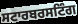
ਸਟਾਰਬਰਸਟਿੰਗ